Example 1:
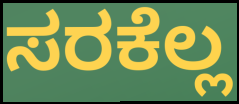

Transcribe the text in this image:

ಸರಕೆಲ್ಲ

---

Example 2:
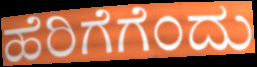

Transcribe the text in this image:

ಹೆರಿಗೆಗೆಂದು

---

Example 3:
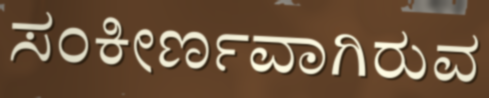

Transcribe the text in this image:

ಸಂಕೀರ್ಣವಾಗಿರುವ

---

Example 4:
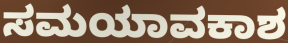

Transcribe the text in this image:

ಸಮಯಾವಕಾಶ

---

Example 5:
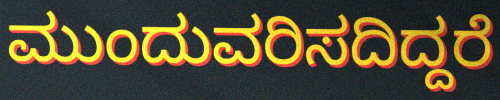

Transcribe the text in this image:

ಮುಂದುವರಿಸದಿದ್ದರೆ